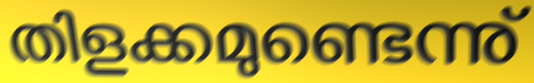
തിളക്കമുണ്ടെന്നു്